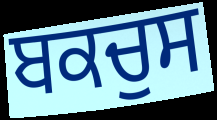
ਬਕਚੁਸ